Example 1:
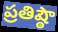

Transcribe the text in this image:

ప్రతిష్ఠౌ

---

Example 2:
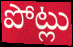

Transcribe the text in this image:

పోట్లు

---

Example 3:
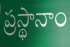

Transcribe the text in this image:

ప్రస్థానాం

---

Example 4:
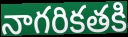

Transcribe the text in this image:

నాగరికతకి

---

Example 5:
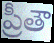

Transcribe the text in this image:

ప్రీతౌ